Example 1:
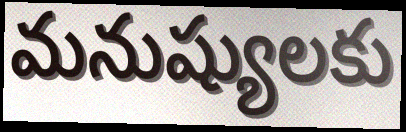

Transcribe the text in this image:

మనుష్యులకు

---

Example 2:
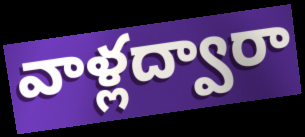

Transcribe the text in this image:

వాళ్లద్వారా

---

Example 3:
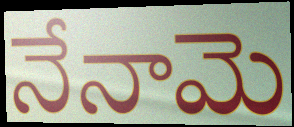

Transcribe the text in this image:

నేనామె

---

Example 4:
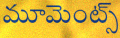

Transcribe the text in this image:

మూమెంట్స్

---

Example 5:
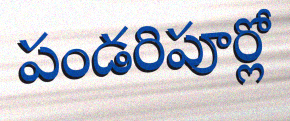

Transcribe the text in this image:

పండరిపూర్లో